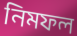
নিমফল